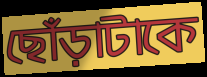
ছোঁড়াটাকে